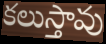
కలుస్తావు